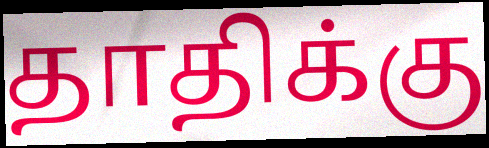
தாதிக்கு